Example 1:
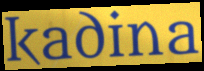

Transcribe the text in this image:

kadina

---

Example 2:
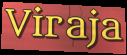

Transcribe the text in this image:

Viraja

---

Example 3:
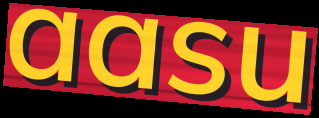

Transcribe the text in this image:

aasu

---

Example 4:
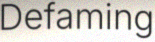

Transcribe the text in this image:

Defaming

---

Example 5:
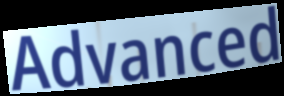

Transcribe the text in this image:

Advanced